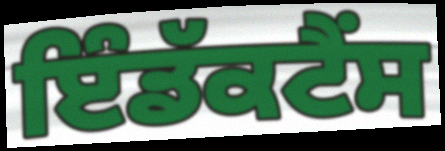
ਇੰਡੱਕਟੈਂਸ